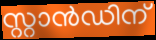
സ്റ്റാൻഡിന്